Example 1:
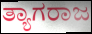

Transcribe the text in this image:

ತ್ಯಾಗರಾಜ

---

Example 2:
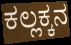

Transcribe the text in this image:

ಕಲ್ಲಕ್ಕನ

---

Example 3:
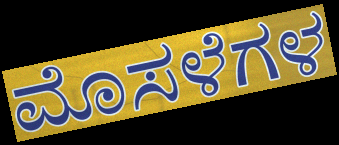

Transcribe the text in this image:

ಮೊಸಳೆಗಳ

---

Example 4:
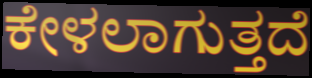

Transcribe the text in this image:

ಕೇಳಲಾಗುತ್ತದೆ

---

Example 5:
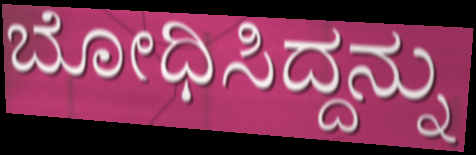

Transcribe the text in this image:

ಬೋಧಿಸಿದ್ದನ್ನು